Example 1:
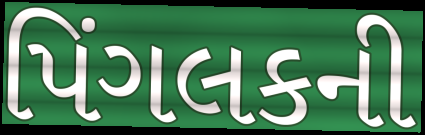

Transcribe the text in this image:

પિંગલકની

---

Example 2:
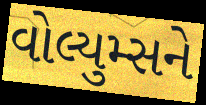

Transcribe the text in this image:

વોલ્યુમ્સને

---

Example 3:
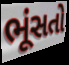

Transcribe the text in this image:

ભૂંસતો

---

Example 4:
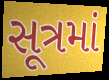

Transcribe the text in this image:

સૂત્રમાં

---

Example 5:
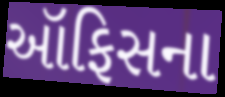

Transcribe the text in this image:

ઑફિસના